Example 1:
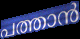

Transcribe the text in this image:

പത്താൻ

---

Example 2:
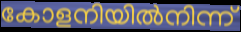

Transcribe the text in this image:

കോളനിയിൽനിന്ന്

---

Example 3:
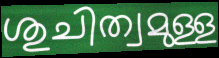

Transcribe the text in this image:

ശുചിത്വമുള്ള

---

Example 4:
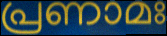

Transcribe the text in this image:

പ്രണാമഃ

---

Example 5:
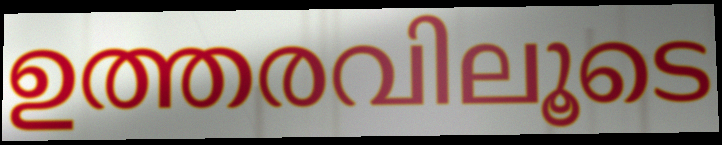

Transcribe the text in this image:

ഉത്തരവിലൂടെ